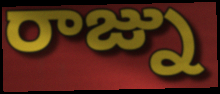
రాజ్ను